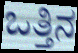
ಒತ್ತಿನ